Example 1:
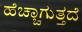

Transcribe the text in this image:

ಹೆಚ್ಚಾಗುತ್ತದೆ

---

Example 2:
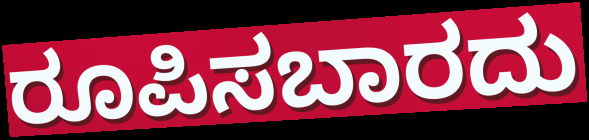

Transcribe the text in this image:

ರೂಪಿಸಬಾರದು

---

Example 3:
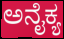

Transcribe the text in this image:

ಅನೈಕ್ಯ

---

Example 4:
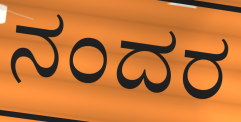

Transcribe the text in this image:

ನಂದರ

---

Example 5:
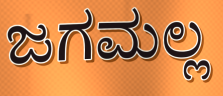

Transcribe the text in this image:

ಜಗಮಲ್ಲ